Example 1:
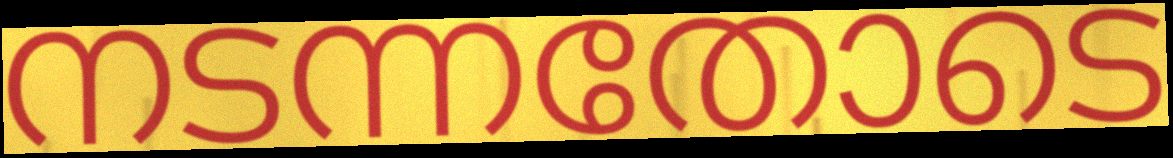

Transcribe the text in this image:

നടന്നതോടെ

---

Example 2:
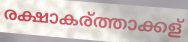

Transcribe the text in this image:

രക്ഷാകര്ത്താക്കള്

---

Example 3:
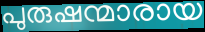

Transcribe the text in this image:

പുരുഷന്മാരായ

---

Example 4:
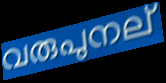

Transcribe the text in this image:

വരുപുനല്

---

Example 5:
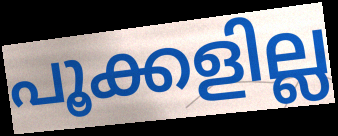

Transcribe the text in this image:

പൂക്കളില്ല